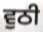
ਵੁਠੀ